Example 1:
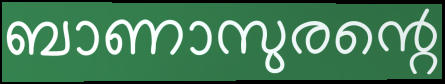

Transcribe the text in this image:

ബാണാസുരന്റെ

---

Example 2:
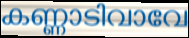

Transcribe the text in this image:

കണ്ണാടിവാവേ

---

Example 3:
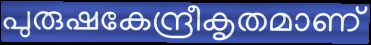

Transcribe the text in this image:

പുരുഷകേന്ദ്രീകൃതമാണ്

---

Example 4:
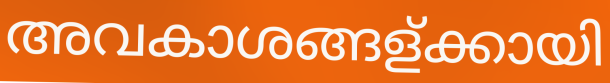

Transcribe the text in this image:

അവകാശങ്ങള്ക്കായി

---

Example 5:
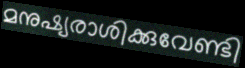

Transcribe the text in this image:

മനുഷ്യരാശിക്കുവേണ്ടി